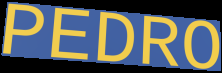
PEDRO